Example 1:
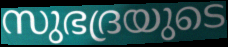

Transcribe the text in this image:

സുഭദ്രയുടെ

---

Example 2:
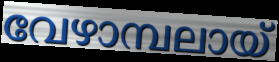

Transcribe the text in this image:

വേഴാമ്പലായ്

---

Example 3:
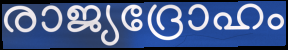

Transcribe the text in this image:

രാജ്യദ്രോഹം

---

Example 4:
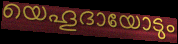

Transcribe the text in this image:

യെഹൂദായോടും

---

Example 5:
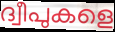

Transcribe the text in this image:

ദ്വീപുകളെ